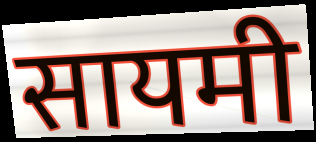
सायमी